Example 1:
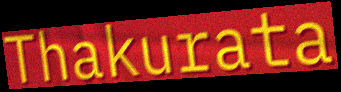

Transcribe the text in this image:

Thakurata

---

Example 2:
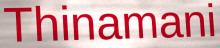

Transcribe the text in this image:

Thinamani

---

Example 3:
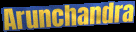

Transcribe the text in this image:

Arunchandra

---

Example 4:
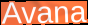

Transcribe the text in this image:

Avana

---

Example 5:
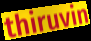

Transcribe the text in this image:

thiruvin